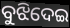
ବୁଝିଦେଇ